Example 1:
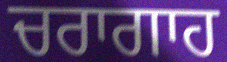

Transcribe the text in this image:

ਚਰਾਗਾਹ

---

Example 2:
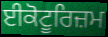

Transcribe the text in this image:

ਈਕੋਟੂਰਿਜ਼ਮ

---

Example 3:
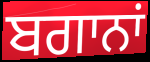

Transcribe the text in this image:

ਬਗਾਨਾਂ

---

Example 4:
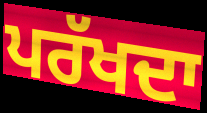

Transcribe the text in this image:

ਪਰੱਖਦਾ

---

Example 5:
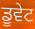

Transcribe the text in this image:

ਡੂਵੇਟ